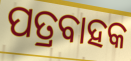
ପତ୍ରବାହକ